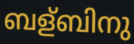
ബള്ബിനു